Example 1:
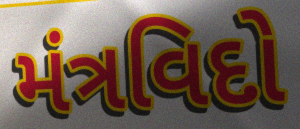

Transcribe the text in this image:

મંત્રવિદો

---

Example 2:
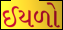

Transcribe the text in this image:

ઈયળો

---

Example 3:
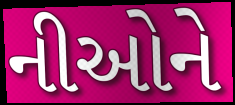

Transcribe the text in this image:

નીઓને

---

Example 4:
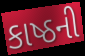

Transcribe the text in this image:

કાષ્ઠની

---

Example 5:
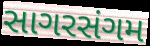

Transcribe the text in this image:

સાગરસંગમ